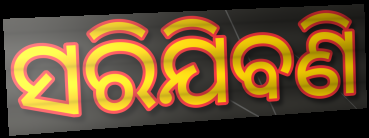
ସରିଯିବଣି